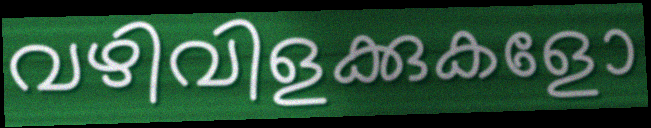
വഴിവിളക്കുകളോ